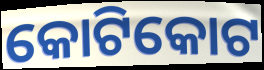
କୋଟିକୋଟ